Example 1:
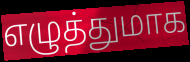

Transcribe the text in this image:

எழுத்துமாக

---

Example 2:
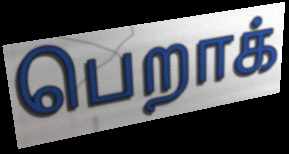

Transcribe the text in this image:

பெறாக்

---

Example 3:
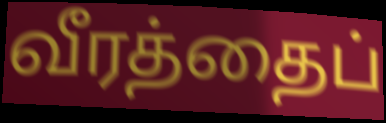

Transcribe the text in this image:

வீரத்தைப்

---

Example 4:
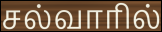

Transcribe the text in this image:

சல்வாரில்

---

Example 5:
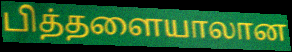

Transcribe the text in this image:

பித்தளையாலான